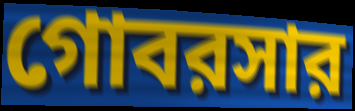
গোবরসার